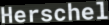
Herschel